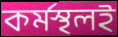
কর্মস্থলই